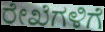
ರೇಖೆಗಳಿಗೆ